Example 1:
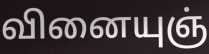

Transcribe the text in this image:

வினையுஞ்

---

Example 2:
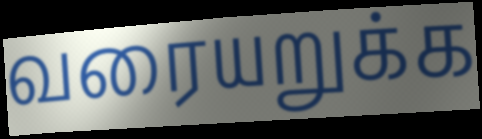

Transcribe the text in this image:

வரையறுக்க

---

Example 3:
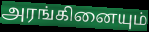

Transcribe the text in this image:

அரங்கினையும்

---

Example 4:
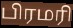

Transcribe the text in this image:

பிரமரி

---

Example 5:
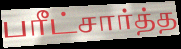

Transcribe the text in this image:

பரீட்சார்த்த